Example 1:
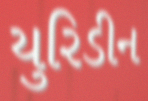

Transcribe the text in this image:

યુરિડીન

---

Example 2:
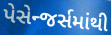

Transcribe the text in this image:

પેસેન્જર્સમાંથી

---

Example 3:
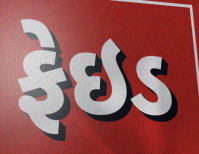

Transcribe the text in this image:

ફેઇડ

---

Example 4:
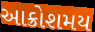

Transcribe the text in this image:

આક્રોશમય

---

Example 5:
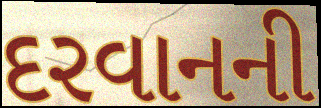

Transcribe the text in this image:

દરવાનની